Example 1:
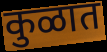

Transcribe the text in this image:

कुळात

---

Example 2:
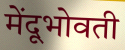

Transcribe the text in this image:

मेंदूभोवती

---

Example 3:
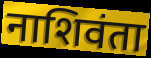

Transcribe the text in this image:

नाशिवंता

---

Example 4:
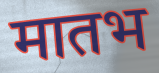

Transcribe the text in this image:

मातभ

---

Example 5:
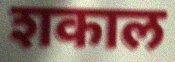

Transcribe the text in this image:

शकाल